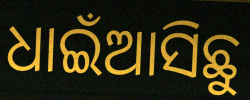
ଧାଇଁଆସିଛୁ